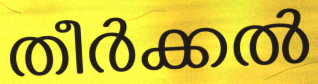
തീർക്കൽ